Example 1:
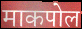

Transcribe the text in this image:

माकपोल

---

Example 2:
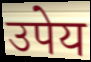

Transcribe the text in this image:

उपेय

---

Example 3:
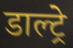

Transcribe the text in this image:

डाल्ट्रे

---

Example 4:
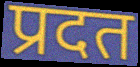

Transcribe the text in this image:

प्रदत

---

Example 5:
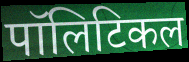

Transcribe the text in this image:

पॉलिटिकल